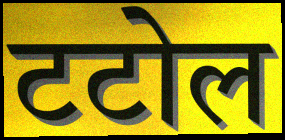
टटोल